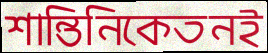
শান্তিনিকেতনই